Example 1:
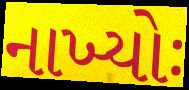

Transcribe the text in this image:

નાખ્યોઃ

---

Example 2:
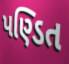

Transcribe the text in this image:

પણ્ડિત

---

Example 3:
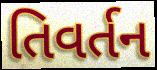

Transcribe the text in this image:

તિવર્તન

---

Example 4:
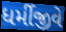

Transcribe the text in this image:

ધર્મીજીવે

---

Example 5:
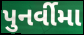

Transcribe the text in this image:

પુનર્વીમા